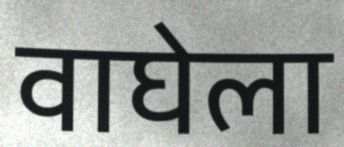
वाघेला